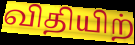
விதியிற்